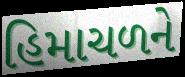
હિમાચળને